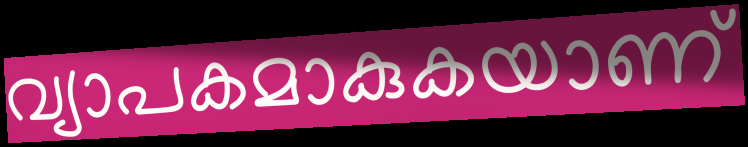
വ്യാപകമാകുകയാണ്